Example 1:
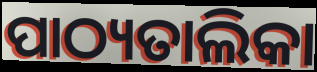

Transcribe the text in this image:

ପାଠ୍ୟତାଲିକା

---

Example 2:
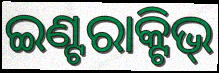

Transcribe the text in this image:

ଇଣ୍ଟରାକ୍ଟିଭ୍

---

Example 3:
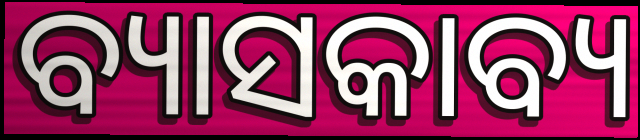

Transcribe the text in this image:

ବ୍ୟାସକାବ୍ୟ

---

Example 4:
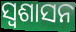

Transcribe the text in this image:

ସ୍ବଶାସନ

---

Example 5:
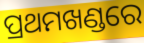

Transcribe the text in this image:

ପ୍ରଥମଖଣ୍ଡରେ